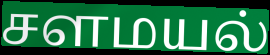
சளமயல்